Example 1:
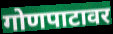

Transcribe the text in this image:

गोणपाटावर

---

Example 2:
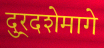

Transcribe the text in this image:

दुर्दशेमागे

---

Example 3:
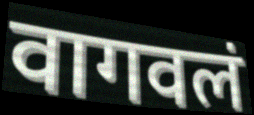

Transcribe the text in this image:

वागवलं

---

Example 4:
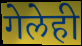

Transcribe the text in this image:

गेलेही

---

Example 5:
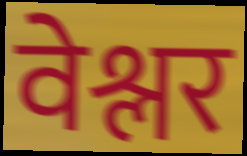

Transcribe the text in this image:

वेश्लर